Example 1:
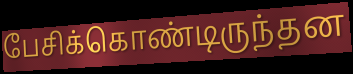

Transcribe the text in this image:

பேசிக்கொண்டிருந்தன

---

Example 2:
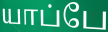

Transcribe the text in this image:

யாப்பே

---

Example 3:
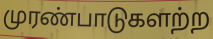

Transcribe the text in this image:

முரண்பாடுகளற்ற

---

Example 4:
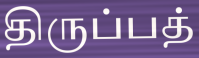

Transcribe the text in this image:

திருப்பத்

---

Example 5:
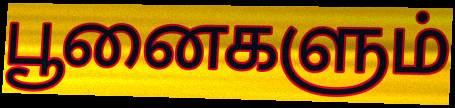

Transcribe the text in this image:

பூனைகளும்